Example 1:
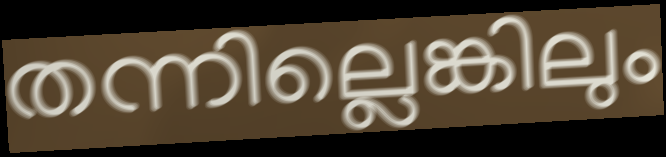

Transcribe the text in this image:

തന്നില്ലെങ്കിലും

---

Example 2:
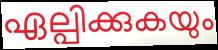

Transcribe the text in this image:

ഏല്പിക്കുകയും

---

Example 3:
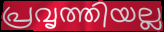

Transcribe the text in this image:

പ്രവൃത്തിയല്ല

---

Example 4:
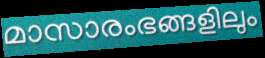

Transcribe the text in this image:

മാസാരംഭങ്ങളിലും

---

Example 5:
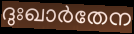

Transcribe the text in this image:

ദുഃഖാർതേന